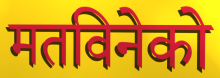
मतविनेको